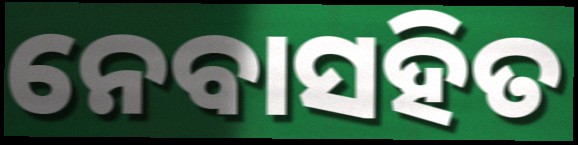
ନେବାସହିତ